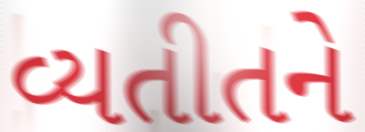
વ્યતીતને